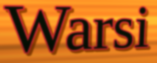
Warsi